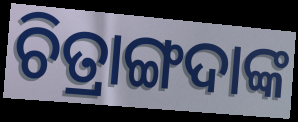
ଚିତ୍ରାଙ୍ଗଦାଙ୍କ